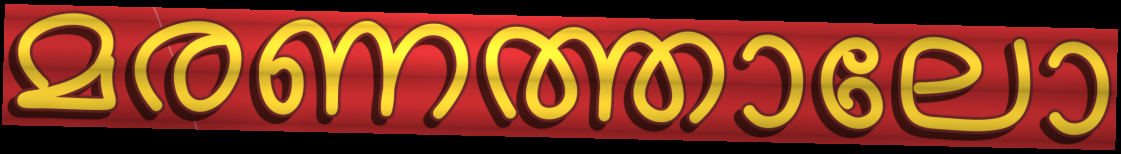
മരണത്താലോ